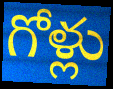
గోళ్లు